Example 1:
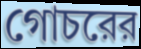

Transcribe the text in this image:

গোচরের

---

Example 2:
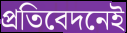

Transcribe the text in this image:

প্রতিবেদনেই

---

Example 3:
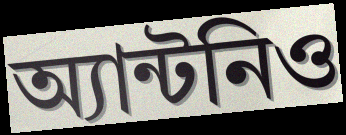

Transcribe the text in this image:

অ্যান্টনিও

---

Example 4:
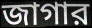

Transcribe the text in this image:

জাগার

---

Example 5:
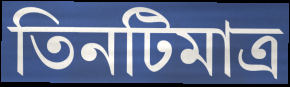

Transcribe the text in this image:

তিনটিমাত্র